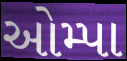
ઓમ્પા